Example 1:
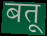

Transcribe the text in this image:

बतू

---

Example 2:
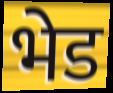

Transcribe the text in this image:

भेड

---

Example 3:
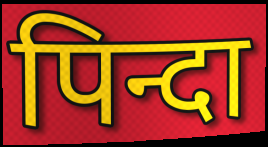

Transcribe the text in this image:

पिन्दा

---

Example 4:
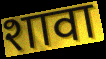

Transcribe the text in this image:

शावा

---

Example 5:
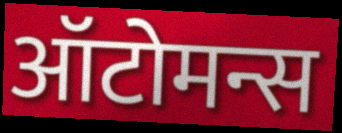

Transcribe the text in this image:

ऑटोमन्स